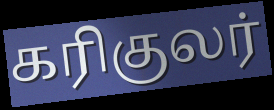
கரிகுலர்